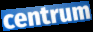
centrum